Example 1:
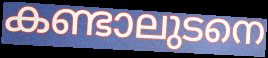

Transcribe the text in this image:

കണ്ടാലുടനെ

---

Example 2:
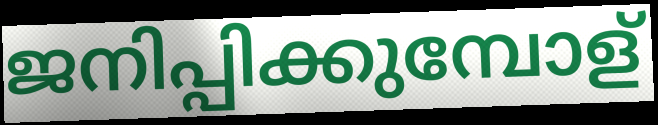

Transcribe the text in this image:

ജനിപ്പിക്കുമ്പോള്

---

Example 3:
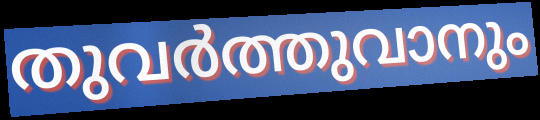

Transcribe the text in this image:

തുവർത്തുവാനും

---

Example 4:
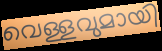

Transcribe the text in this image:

വെള്ളവുമായി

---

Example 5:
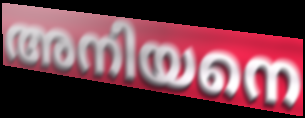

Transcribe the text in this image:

അനിയനെ